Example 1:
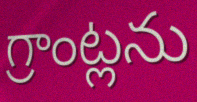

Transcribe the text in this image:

గ్రాంట్లను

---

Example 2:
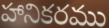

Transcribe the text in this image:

హానికరము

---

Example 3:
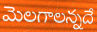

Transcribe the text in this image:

మెలగాలన్నదే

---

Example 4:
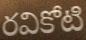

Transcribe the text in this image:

రవికోటి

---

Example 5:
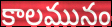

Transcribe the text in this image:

కాలమునం